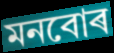
মনবোৰ